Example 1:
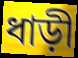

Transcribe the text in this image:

ধাড়ী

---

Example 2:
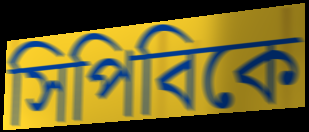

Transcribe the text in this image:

সিপিবিকে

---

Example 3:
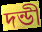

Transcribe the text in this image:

দন্ডী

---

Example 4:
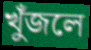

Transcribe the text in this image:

খুঁজলে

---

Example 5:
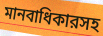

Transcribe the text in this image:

মানবাধিকারসহ